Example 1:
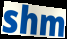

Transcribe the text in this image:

shm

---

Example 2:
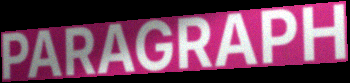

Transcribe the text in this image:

PARAGRAPH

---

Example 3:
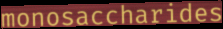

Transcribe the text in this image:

monosaccharides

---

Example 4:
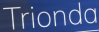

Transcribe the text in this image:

Trionda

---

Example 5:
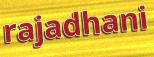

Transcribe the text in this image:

rajadhani